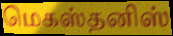
மெகஸ்தனிஸ்